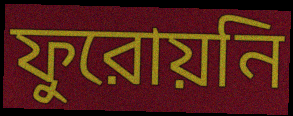
ফুরোয়নি